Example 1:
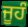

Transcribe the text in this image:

ਜੂਹੰ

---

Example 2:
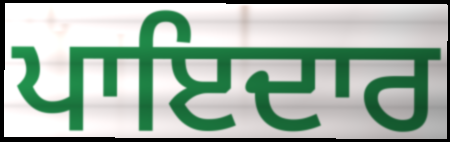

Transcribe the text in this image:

ਪਾਇਦਾਰ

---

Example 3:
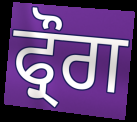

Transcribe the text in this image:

ਫ੍ਰੌਗ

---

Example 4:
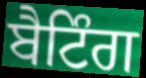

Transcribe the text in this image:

ਬੈਟਿੰਗ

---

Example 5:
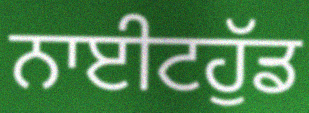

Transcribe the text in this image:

ਨਾਈਟਹੁੱਡ